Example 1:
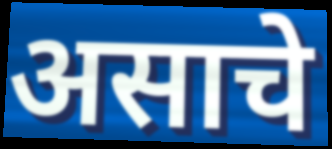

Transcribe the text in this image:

असाचे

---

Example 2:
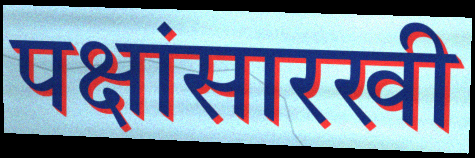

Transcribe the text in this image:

पक्षांसारखी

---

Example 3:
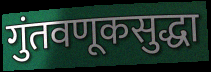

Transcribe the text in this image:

गुंतवणूकसुद्धा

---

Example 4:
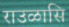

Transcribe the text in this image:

राउळासि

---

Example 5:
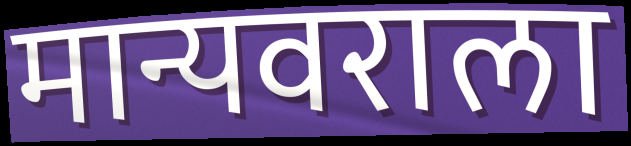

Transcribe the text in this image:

मान्यवराला